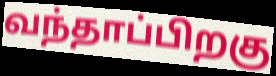
வந்தாப்பிறகு